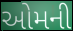
ઓમની